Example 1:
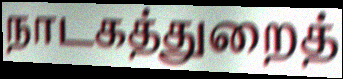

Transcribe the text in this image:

நாடகத்துறைத்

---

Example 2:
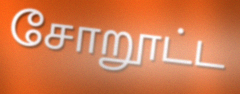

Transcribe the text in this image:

சோறூட்ட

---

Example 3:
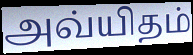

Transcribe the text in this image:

அவ்யிதம்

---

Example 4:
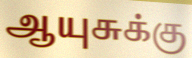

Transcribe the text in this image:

ஆயுசுக்கு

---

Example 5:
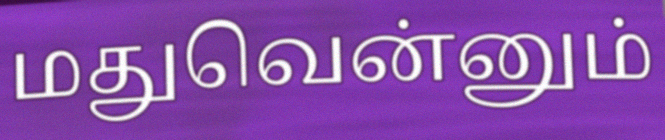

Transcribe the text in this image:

மதுவென்னும்